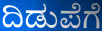
ದಿಡುಪೆಗೆ